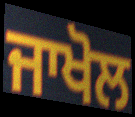
ਜਾਖੋਲ